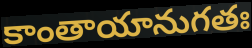
కాంతాయానుగతః